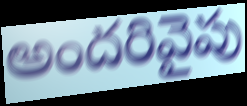
అందరివైపు